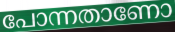
പോന്നതാണോ